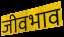
जीवभाव